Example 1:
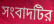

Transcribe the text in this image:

সংবাদটির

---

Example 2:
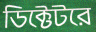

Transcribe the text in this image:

ডিক্টেটরে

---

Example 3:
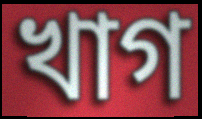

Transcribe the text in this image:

খাগ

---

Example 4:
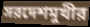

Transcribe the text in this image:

সরদেশমুখীর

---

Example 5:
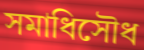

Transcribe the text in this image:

সমাধিসৌধ